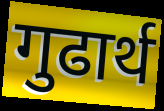
गुढार्थ